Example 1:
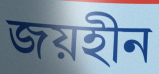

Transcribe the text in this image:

জয়হীন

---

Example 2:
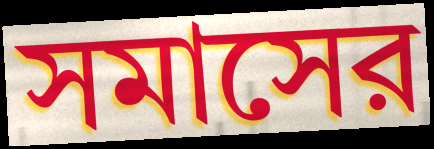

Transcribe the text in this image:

সমাসের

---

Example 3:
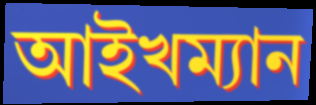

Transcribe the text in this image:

আইখম্যান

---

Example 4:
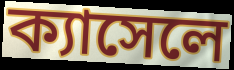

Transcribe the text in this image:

ক্যাসেলে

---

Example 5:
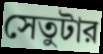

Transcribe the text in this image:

সেতুটার